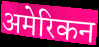
अमेरिकन